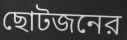
ছোটজনের